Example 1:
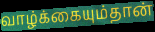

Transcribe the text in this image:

வாழ்க்கையும்தான்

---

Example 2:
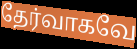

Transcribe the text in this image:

தேர்வாகவே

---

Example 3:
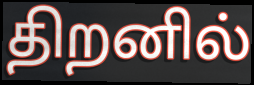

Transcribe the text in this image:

திறனில்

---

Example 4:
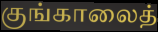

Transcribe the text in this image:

குங்காலைத்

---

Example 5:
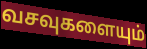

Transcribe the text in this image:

வசவுகளையும்